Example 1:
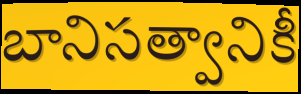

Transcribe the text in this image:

బానిసత్వానికీ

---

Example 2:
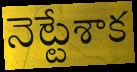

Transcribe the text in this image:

నెట్టేశాక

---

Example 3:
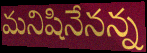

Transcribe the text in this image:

మనిషినేనన్న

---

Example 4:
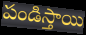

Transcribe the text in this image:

పండిస్తాయి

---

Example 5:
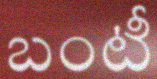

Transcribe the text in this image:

బంటీ